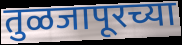
तुळजापूरच्या